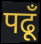
पढूँ